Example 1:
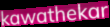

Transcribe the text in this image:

kawathekar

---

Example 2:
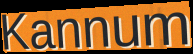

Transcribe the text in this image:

Kannum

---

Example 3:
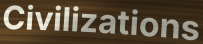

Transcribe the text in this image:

Civilizations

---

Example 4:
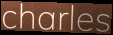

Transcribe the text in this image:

charles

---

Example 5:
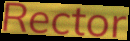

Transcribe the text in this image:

Rector